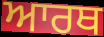
ਆਰਥ